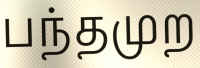
பந்தமுற